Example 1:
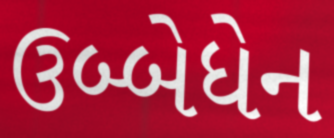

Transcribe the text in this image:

ઉબ્બેધેન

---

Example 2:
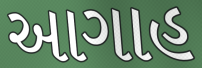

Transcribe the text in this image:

આગાહ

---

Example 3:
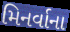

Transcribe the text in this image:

મિનર્વાના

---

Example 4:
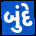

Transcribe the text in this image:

બુંદે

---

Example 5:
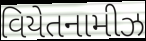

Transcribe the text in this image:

વિયેતનામીઝ